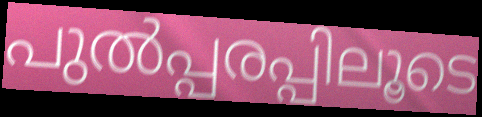
പുൽപ്പരപ്പിലൂടെ